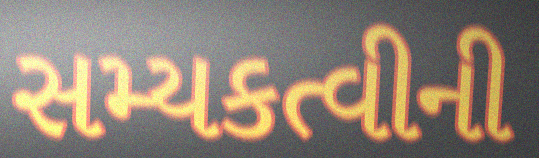
સમ્યકત્વીની